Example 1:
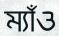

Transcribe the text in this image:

ম্যাঁও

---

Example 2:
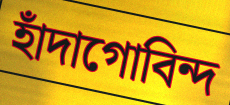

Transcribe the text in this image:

হাঁদাগোবিন্দ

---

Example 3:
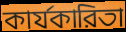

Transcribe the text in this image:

কার্যকারিতা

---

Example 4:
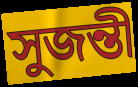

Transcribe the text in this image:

সুজন্তী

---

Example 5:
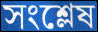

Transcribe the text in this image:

সংশ্লেষ